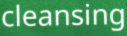
cleansing